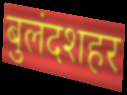
बुलंदशहर